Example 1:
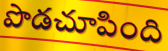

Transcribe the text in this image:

పొడచూపింది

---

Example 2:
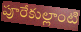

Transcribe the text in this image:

పూరేకుల్లాంటి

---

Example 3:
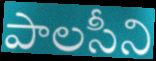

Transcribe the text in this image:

పాలసీని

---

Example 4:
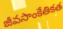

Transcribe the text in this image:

జీవసాంకేతికత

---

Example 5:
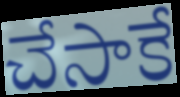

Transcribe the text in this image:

చేసాకే